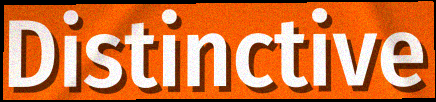
Distinctive